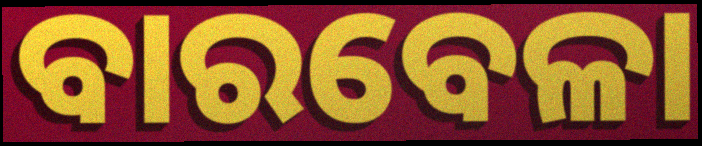
ବାରବେଳା